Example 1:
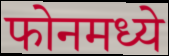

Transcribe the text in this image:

फोनमध्ये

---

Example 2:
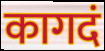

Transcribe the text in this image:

कागदं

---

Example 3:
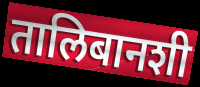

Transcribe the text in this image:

तालिबानशी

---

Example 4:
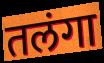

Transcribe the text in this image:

तलंगा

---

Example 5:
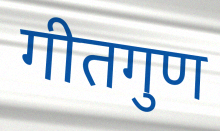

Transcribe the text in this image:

गीतगुण